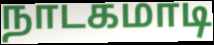
நாடகமாடி